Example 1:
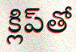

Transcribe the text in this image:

క్లిప్‌తో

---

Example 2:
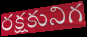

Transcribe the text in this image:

రక్షకునిగ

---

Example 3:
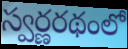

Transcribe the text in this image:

స్వర్ణరథంలో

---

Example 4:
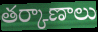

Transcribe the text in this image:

తర్కాణాలు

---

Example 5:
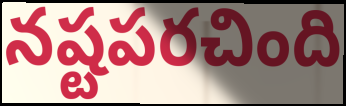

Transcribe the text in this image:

నష్టపరచింది